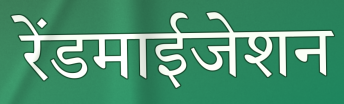
रेंडमाईजेशन